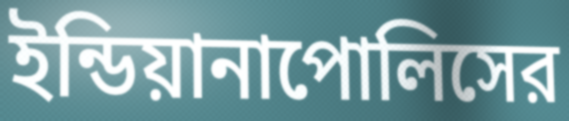
ইন্ডিয়ানাপোলিসের